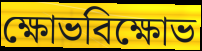
ক্ষোভবিক্ষোভ